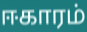
ஈகாரம்